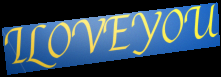
ILOVEYOU